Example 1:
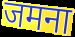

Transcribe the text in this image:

जमना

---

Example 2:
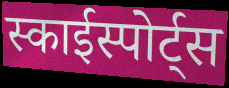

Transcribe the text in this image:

स्काईस्पोर्ट्स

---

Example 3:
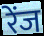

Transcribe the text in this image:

रेंज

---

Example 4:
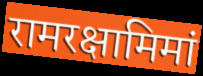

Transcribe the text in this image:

रामरक्षामिमां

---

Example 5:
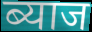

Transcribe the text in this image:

ब्याज